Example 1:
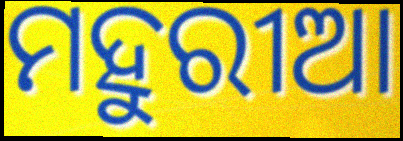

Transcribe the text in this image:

ମହୁରୀଆ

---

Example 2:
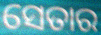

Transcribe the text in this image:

ସେତାର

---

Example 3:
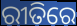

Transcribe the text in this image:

ରୀତିରେ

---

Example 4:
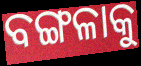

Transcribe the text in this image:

ବଙ୍ଗଳାକୁ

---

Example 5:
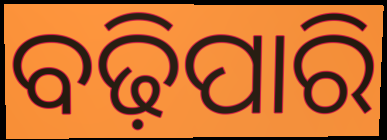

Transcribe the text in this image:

ବଢ଼ିପାରି